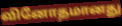
வினோதமானது